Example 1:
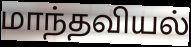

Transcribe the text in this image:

மாந்தவியல்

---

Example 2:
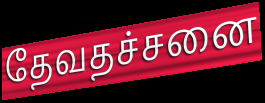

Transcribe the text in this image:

தேவதச்சனை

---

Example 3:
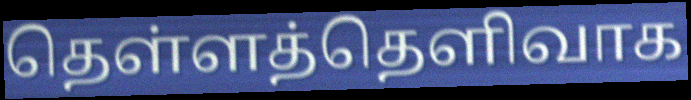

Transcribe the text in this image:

தெள்ளத்தெளிவாக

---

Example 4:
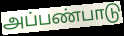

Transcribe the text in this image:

அப்பண்பாடு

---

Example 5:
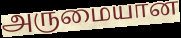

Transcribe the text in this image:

அருமையான